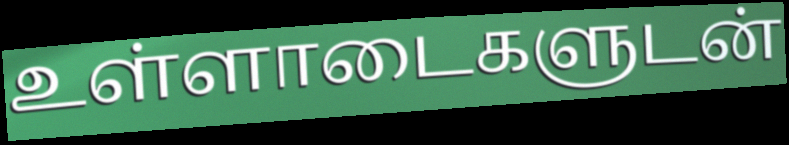
உள்ளாடைகளுடன்